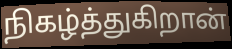
நிகழ்த்துகிறான்